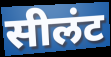
सीलंट